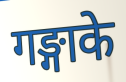
गङ्गाके